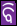
ବି